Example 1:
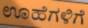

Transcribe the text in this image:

ಊಹೆಗಳಿಗೆ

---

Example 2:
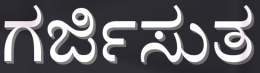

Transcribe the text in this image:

ಗರ್ಜಿಸುತ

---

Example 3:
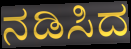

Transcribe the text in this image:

ನಡಿಸಿದ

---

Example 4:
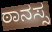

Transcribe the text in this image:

ಠಾನಸ್ಸ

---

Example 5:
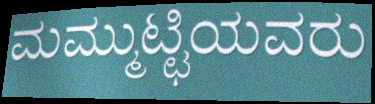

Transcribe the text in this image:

ಮಮ್ಮುಟ್ಟಿಯವರು